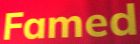
Famed